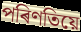
পৰিণতিয়ে